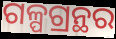
ଗଳ୍ପଗ୍ରନ୍ଥର